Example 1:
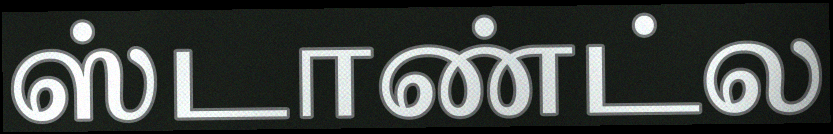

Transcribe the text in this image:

ஸ்டாண்ட்ல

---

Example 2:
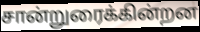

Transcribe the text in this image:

சான்றுரைக்கின்றன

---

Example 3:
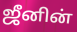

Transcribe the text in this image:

ஜீனின்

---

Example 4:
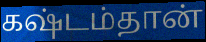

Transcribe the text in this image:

கஷ்டம்தான்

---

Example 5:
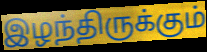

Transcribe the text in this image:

இழந்திருக்கும்